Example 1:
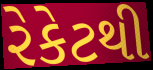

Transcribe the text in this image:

રેકેટથી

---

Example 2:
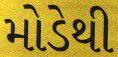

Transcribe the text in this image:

મોડેથી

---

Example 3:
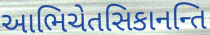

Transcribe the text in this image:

આભિચેતસિકાનન્તિ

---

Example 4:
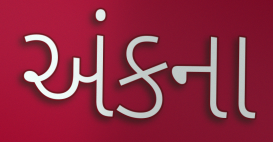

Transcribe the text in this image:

અંકના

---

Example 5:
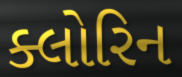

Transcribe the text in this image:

ક્લોરિન